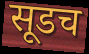
सूडच